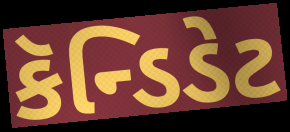
કૅન્ડિડેટ